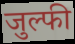
जुल्फी